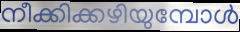
നീക്കിക്കഴിയുമ്പോൾ